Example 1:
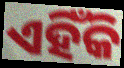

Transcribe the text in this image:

ଏହିଁକି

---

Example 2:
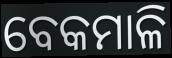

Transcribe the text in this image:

ବେକମାଳି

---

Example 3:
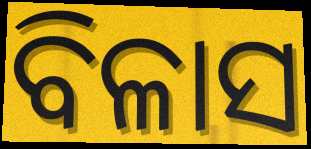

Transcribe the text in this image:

ବିଳାସ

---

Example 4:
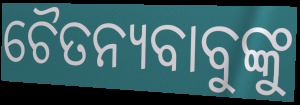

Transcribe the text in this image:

ଚୈତନ୍ୟବାବୁଙ୍କୁ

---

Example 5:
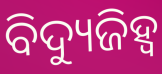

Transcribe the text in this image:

ବିଦ୍ୟୁଜିହ୍ୱ